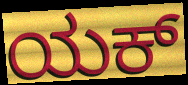
ಯಕ್